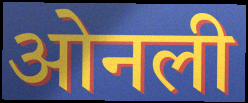
ओनली